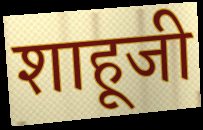
शाहूजी